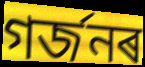
গৰ্জনৰ